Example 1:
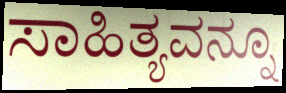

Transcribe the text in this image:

ಸಾಹಿತ್ಯವನ್ನೂ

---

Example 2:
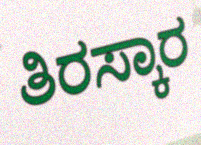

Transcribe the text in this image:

ತಿರಸ್ಕಾರ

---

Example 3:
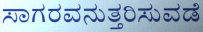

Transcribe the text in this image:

ಸಾಗರವನುತ್ತರಿಸುವಡೆ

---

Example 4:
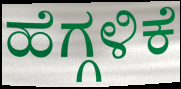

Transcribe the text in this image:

ಹೆಗ್ಗಳಿಕೆ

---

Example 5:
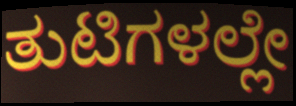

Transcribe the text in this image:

ತುಟಿಗಳಲ್ಲೇ